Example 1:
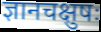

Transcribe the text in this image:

ज्ञानचक्षुषः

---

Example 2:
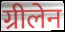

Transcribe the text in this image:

ग्रीलेन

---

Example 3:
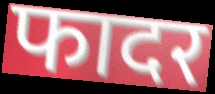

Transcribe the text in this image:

फादर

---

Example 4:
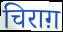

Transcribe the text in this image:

चिराग़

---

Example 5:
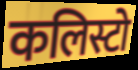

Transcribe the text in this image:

कलिस्टो